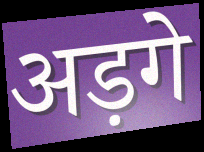
अड़गे